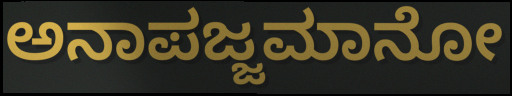
ಅನಾಪಜ್ಜಮಾನೋ